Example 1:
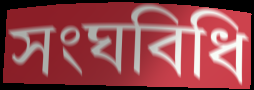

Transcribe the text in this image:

সংঘবিধি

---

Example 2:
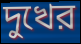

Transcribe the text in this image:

দুখের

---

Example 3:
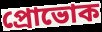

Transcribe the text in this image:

প্রোভোক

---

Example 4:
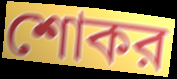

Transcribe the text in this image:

শোকর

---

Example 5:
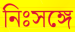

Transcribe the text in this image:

নিঃসঙ্গে